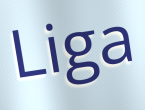
Liga